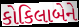
કોકિલાબેને